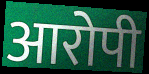
आरोपी